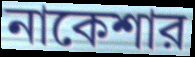
নাকেশার